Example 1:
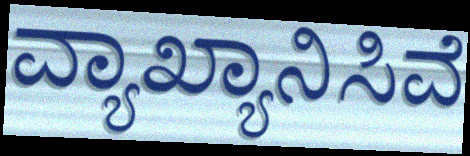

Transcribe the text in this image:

ವ್ಯಾಖ್ಯಾನಿಸಿವೆ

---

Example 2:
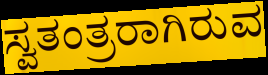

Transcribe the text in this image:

ಸ್ವತಂತ್ರರಾಗಿರುವ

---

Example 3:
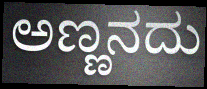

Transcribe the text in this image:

ಅಣ್ಣನದು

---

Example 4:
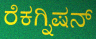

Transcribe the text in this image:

ರೆಕಗ್ನಿಷನ್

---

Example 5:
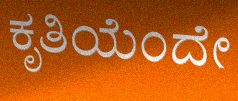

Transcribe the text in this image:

ಕೃತಿಯೆಂದೇ